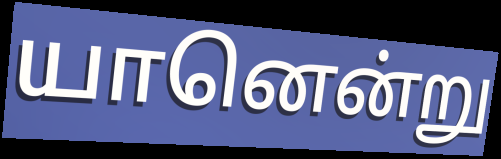
யானென்று